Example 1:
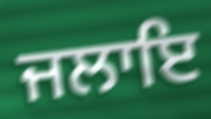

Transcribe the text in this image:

ਜਲਾਇ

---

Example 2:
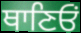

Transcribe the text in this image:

ਥਾਣਿਓਂ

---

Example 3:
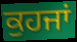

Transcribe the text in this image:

ਕੁਹਜਾਂ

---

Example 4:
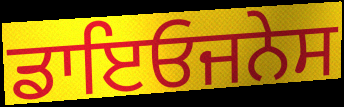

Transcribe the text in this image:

ਡਾਇਓਜਨੇਸ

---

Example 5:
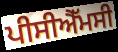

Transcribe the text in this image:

ਪੀਸੀਐੱਮਸੀ